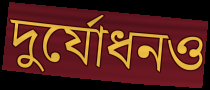
দুর্যোধনও